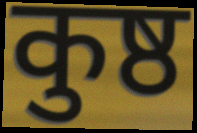
कुष्ठ